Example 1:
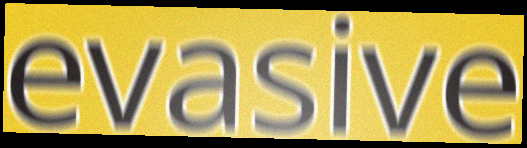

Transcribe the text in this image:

evasive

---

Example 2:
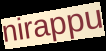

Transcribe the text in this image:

nirappu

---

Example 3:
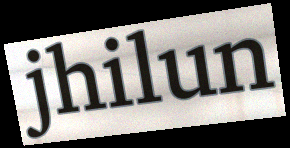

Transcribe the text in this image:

jhilun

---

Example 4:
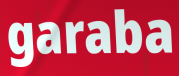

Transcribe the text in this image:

garaba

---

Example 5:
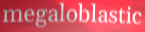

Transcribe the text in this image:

megaloblastic